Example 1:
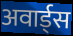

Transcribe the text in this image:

अवार्ड्स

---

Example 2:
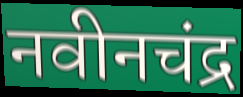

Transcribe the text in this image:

नवीनचंद्र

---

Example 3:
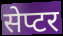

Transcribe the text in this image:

सेप्टर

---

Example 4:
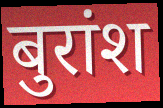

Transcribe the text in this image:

बुरांश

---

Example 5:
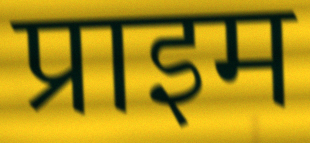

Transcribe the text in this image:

प्राइम